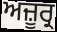
ਅਜ਼ੂਰ੍ਰ